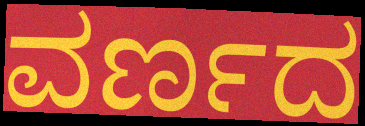
ವರ್ಣದ